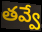
తవ్వే